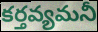
కర్తవ్యమనీ